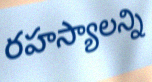
రహస్యాలన్ని